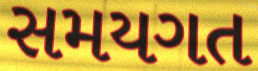
સમયગત